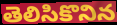
తెలిసికొనిన